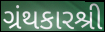
ગ્રંથકારશ્રી